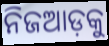
ନିଜଆଡ଼କୁ